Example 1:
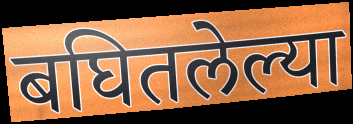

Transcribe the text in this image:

बघितलेल्या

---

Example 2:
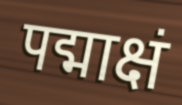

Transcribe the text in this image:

पद्माक्षं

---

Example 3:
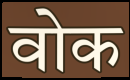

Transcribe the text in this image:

वोक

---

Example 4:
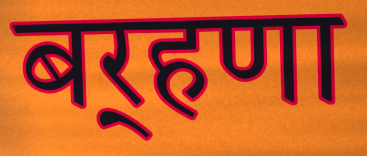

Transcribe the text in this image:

बर्हणा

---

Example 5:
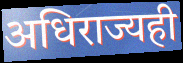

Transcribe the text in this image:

अधिराज्यही